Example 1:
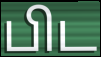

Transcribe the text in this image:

பிட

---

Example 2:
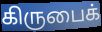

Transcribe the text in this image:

கிருபைக்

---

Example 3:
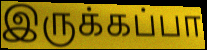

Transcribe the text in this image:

இருக்கப்பா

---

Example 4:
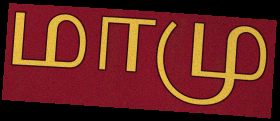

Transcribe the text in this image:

மாமு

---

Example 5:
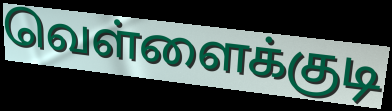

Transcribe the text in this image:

வெள்ளைக்குடி